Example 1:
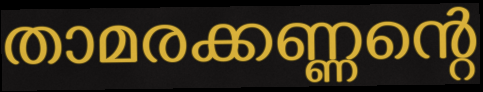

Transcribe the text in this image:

താമരക്കണ്ണന്റെ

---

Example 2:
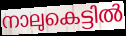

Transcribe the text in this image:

നാലുകെട്ടിൽ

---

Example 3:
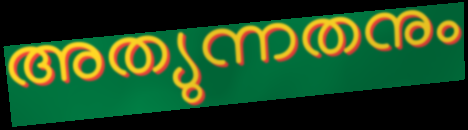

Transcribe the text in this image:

അത്യുന്നതനും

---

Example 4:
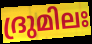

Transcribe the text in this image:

ദ്രുമിലഃ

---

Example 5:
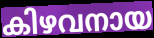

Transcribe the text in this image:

കിഴവനായ